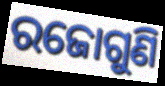
ରଜୋଗୁଣି